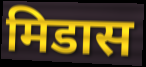
मिडास